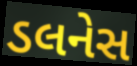
ડલનેસ